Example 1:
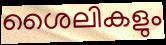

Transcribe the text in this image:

ശൈലികളും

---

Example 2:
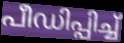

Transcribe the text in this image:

പീഡിപ്പിച്ച്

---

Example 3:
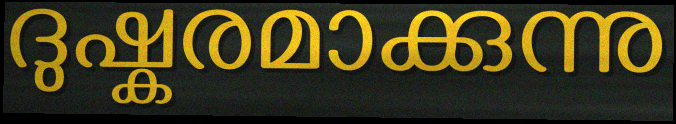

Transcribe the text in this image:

ദുഷ്കരമാക്കുന്നു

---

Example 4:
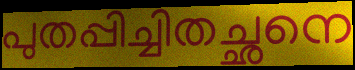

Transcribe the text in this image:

പുതപ്പിച്ചിതച്ഛനെ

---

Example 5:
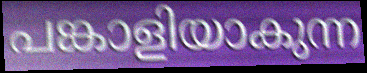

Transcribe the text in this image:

പങ്കാളിയാകുന്ന